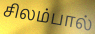
சிலம்பால்